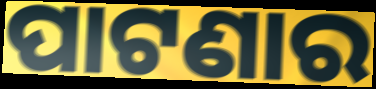
ପାଟଣାର